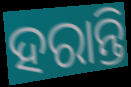
ହରାନ୍ତି